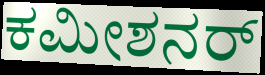
ಕಮೀಶನರ್